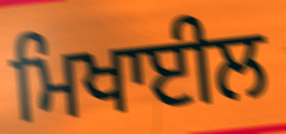
ਮਿਖਾਈਲ